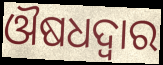
ଔଷଧଦ୍ୱାର